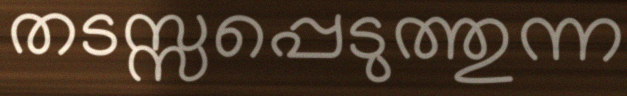
തടസ്സപ്പെടുത്തുന്ന